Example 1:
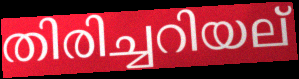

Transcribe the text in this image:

തിരിച്ചറിയല്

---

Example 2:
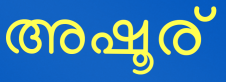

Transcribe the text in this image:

അഷൂര്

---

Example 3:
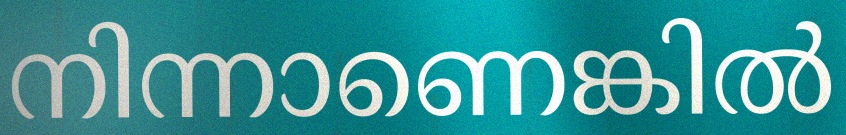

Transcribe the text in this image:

നിന്നാണെങ്കിൽ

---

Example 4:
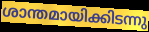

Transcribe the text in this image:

ശാന്തമായിക്കിടന്നു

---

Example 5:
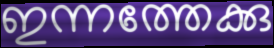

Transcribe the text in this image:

ഇന്നത്തേക്കു